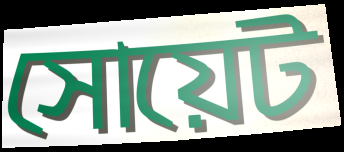
সোয়েট